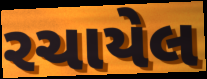
રચાયેલ